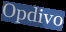
Opdivo